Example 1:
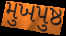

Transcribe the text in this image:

મુખપુષ્ઠ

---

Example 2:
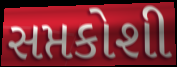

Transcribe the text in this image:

સપ્તકોશી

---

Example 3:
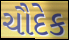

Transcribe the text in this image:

ચૌદેક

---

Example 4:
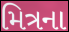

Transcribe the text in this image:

મિત્રના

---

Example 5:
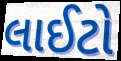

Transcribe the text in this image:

લાઈટો